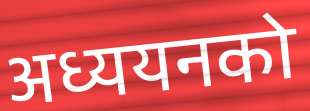
अध्ययनको